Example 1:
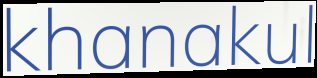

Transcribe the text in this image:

khanakul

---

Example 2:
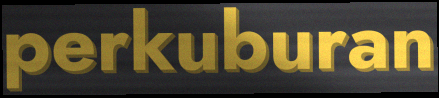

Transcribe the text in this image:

perkuburan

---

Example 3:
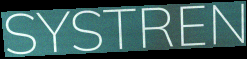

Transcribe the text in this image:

SYSTREN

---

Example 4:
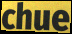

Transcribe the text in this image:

chue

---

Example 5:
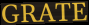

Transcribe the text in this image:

GRATE